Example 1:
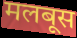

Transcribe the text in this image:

मलबूस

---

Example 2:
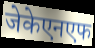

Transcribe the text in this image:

जेकेएनएफ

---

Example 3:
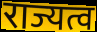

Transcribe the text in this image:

राज्यत्व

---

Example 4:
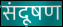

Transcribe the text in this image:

संदूषण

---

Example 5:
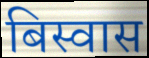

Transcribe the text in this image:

बिस्वास